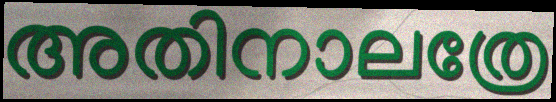
അതിനാലത്രേ